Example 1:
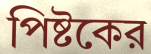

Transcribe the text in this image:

পিষ্টকের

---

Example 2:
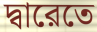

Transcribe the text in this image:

দ্বারেতে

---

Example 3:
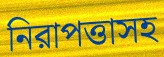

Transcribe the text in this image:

নিরাপত্তাসহ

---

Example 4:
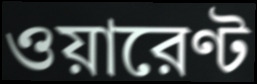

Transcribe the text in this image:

ওয়ারেণ্ট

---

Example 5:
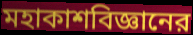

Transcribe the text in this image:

মহাকাশবিজ্ঞানের